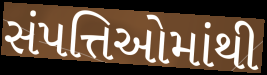
સંપત્તિઓમાંથી